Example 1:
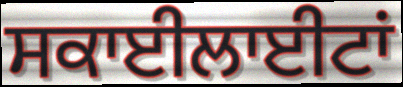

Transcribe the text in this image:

ਸਕਾਈਲਾਈਟਾਂ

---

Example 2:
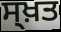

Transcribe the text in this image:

ਸ੍ਖ਼ਤ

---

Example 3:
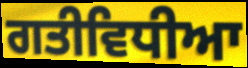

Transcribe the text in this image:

ਗਤੀਵਿਧੀਆ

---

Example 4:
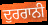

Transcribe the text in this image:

ਦੁਰਰਾਨੀ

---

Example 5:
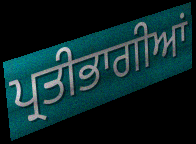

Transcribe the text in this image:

ਪ੍ਰਤੀਭਾਗੀਆਂ